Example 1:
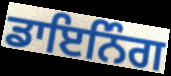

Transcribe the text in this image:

ਡਾਇਨਿੰਗ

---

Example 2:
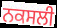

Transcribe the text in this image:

ਨਕਸਲੀ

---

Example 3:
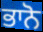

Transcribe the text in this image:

ਭਾਨੋ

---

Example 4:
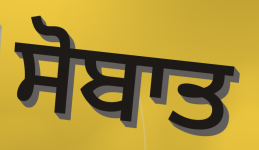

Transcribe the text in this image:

ਸੋਬਾਤ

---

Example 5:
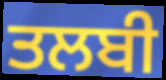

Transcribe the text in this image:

ਤਲਬੀ